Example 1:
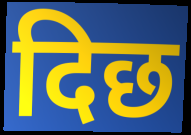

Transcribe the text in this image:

दिछ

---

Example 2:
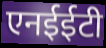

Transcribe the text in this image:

एनईईटी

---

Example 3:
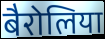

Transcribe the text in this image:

बैरोलिया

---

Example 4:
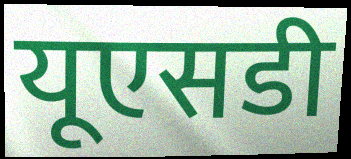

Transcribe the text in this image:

यूएसडी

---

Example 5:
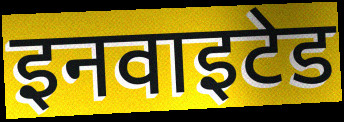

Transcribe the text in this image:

इनवाइटेड